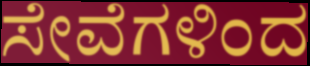
ಸೇವೆಗಳಿಂದ